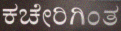
ಕಚೇರಿಗಿಂತ